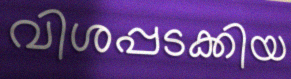
വിശപ്പടക്കിയ